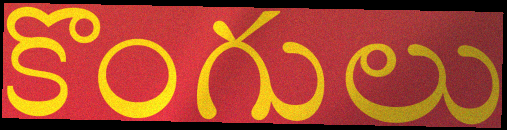
కొంగులు